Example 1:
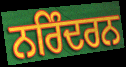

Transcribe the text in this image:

ਨਰਿੰਦਰਨ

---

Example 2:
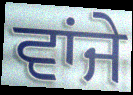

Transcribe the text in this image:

ਵਾਂਜੇ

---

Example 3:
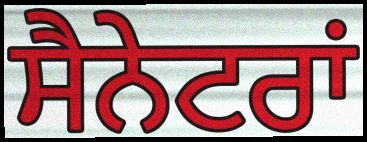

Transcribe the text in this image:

ਸੈਨੇਟਰਾਂ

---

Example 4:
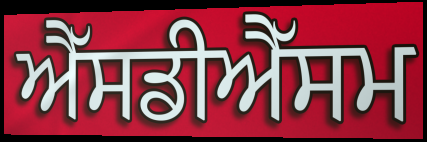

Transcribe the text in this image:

ਐੱਸਡੀਐੱਸਮ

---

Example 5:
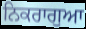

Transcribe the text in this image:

ਨਿਕਰਾਗੁਆ